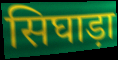
सिघाड़ा